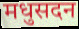
मधुसदन